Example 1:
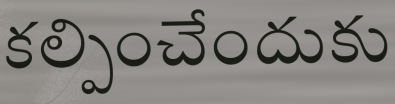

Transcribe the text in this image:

కల్పించేందుకు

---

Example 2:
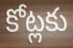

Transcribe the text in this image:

కోట్లకు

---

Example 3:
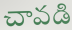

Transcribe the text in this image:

చావడి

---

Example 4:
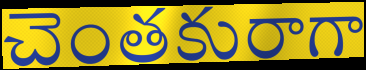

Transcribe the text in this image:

చెంతకురాగా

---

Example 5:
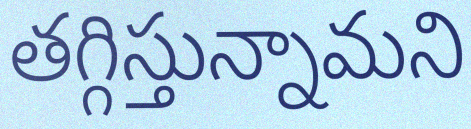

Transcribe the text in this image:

తగ్గిస్తున్నామని